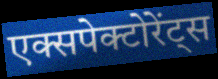
एक्सपेक्टोरेंट्स